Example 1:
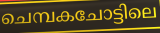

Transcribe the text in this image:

ചെമ്പകചോട്ടിലെ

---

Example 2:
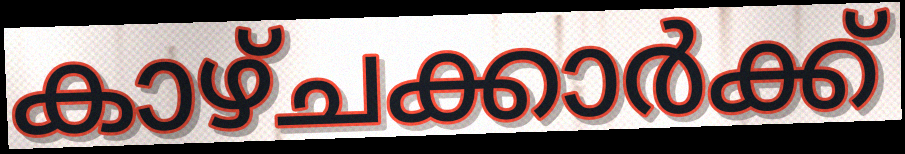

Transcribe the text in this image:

കാഴ്ചക്കാർക്ക്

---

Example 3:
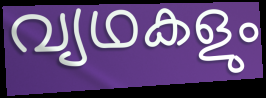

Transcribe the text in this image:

വ്യഥകളും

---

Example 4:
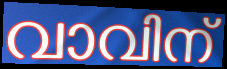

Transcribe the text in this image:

വാവിന്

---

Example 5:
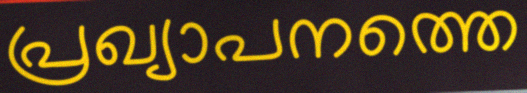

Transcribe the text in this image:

പ്രഖ്യാപനത്തെ